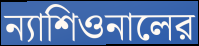
ন্যাশিওনালের